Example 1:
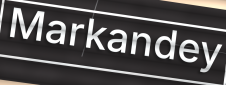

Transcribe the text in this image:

Markandey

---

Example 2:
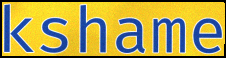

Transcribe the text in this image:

kshame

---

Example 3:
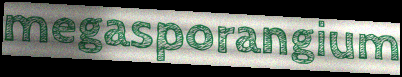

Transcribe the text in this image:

megasporangium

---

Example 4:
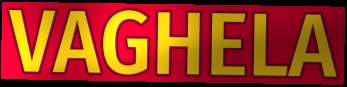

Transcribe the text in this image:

VAGHELA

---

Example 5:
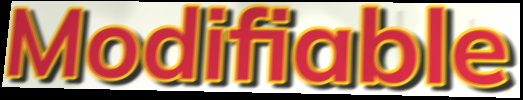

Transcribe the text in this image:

Modifiable